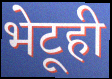
भेटूही